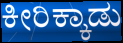
ಕೀರಿಕ್ಕಾಡು